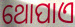
ଥୋପାଏ